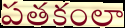
పతకంలా